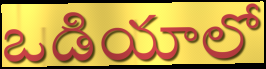
ఒడియాలో